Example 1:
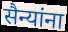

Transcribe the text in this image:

सैन्यांना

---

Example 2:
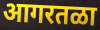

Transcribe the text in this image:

आगरतळा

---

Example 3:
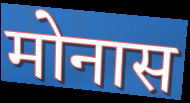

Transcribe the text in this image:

मोनास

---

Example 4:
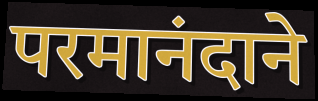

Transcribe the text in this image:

परमानंदाने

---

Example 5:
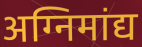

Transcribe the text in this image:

अग्निमांद्य